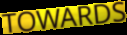
TOWARDS